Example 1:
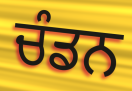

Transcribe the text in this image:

ਚੰਡਨ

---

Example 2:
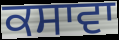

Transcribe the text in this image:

ਕਸਾਵਾ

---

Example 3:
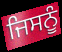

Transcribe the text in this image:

ਜਿਸਨੂੰ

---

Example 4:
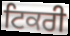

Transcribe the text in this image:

ਟਿਕਰੀ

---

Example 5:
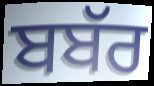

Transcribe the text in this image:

ਬਬੱਰ